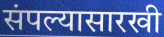
संपल्यासारखी